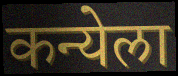
कन्येला